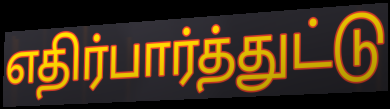
எதிர்பார்த்துட்டு